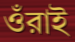
ওঁরাই